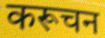
करूचन